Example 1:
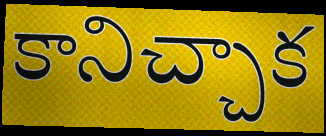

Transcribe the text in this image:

కానిచ్చాక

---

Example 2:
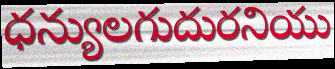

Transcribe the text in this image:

ధన్యులగుదురనియు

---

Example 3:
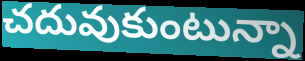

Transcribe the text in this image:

చదువుకుంటున్నా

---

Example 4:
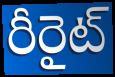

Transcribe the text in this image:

రీరైట్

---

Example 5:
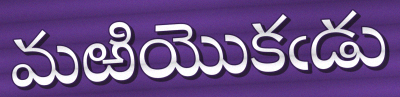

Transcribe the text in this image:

మఱియొకఁడు